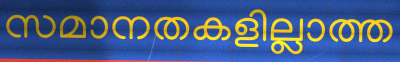
സമാനതകളില്ലാത്ത